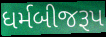
ધર્મબીજરૂપ